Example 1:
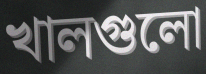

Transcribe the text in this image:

খালগুলো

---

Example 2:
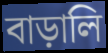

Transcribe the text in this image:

বাড়ালি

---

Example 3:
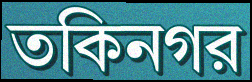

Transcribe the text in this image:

তকিনগর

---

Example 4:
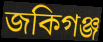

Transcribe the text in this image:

জকিগঞ্জ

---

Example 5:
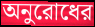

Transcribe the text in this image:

অনুরোধের